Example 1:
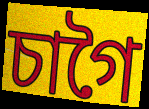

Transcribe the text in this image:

চাগৈ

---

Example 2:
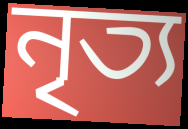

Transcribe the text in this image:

নৃত্য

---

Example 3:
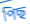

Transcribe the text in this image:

পিছ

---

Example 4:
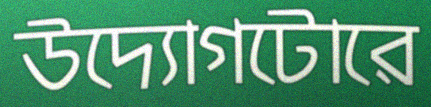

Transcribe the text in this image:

উদ্যোগটোৱে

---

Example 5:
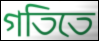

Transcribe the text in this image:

গতিতে